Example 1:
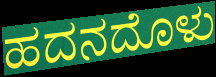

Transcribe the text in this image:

ಹದನದೊಳು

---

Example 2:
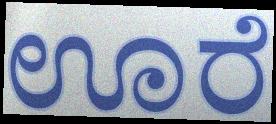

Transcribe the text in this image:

ಊರೆ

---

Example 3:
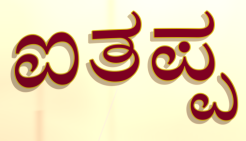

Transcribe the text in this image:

ಐತಪ್ಪ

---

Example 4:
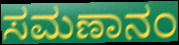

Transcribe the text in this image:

ಸಮಣಾನಂ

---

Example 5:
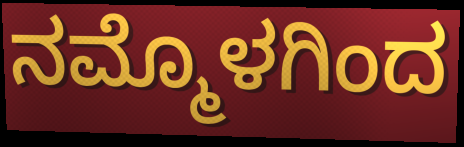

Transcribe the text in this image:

ನಮ್ಮೊಳಗಿಂದ